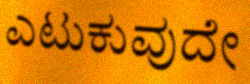
ಎಟುಕುವುದೇ